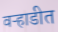
वऱ्हाडीत